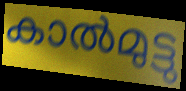
കാൽമുട്ടു